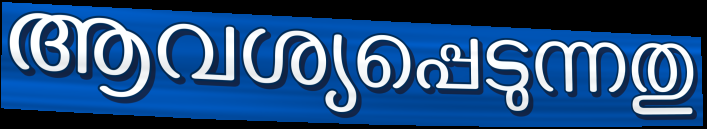
ആവശ്യപ്പെടുന്നതു